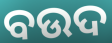
ବଉଦ